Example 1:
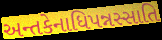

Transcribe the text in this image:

અન્તકેનાધિપન્નસ્સાતિ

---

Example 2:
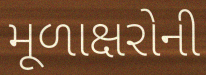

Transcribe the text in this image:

મૂળાક્ષરોની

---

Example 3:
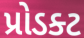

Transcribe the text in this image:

પ્રોડક્ટ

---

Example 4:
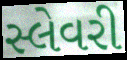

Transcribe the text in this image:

સ્લેવરી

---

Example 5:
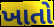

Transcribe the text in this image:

ખાતો